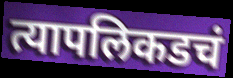
त्यापलिकडचं